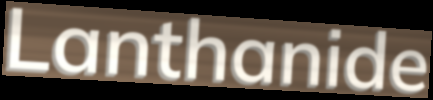
Lanthanide